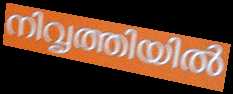
നിവൃത്തിയിൽ